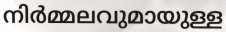
നിർമ്മലവുമായുള്ള